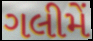
ગલીમેં